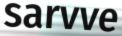
sarvve